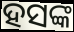
ହସଙ୍କ